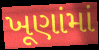
ખૂણાંમાં